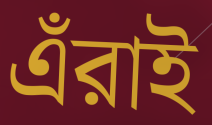
এঁরাই